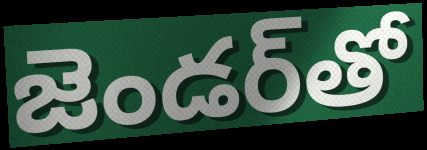
జెండర్‌తో